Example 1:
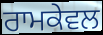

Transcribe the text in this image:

ਰਾਮਕੇਵਲ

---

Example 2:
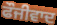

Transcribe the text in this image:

ਫੌਜੀਵਾਦ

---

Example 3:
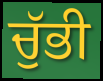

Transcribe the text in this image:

ਚੁੱਭੀ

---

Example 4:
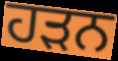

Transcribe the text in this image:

ਹੜਨ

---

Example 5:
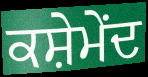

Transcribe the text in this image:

ਕਸ਼ੇਮੇਂਦ